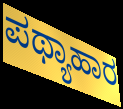
ಪಥ್ಯಾಹಾರ